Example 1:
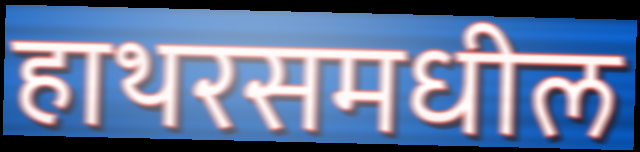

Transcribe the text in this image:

हाथरसमधील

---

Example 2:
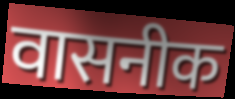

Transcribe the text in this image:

वासनीक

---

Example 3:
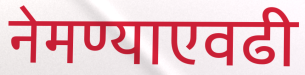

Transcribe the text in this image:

नेमण्याएवढी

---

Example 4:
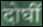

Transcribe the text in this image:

दोघीं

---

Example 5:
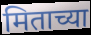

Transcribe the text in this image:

मिताच्या